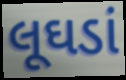
લૂઘડાં